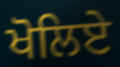
ਖੋਲਿਏ